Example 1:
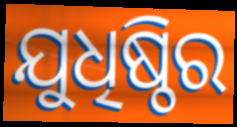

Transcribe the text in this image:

ଯୁଧିଷ୍ଠିର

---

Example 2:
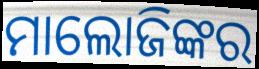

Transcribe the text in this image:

ମାଲୋଜିଙ୍କର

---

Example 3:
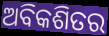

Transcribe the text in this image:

ଅବିକଶିତର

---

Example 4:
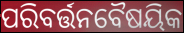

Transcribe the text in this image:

ପରିବର୍ତ୍ତନବୈଷୟିକ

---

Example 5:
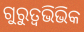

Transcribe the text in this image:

ଗୁରୁତ୍ଵଭିଭିକ